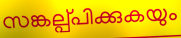
സങ്കല്പ്പിക്കുകയും